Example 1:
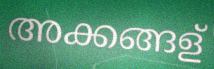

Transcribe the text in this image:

അക്കങ്ങള്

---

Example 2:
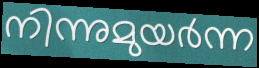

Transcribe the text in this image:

നിന്നുമുയർന്ന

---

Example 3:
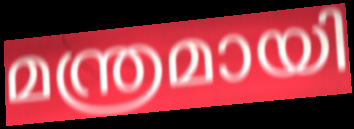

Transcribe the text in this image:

മന്ത്രമായി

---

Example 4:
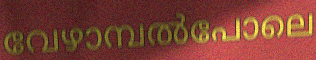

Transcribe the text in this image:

വേഴാമ്പൽപോലെ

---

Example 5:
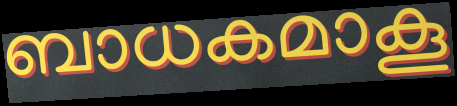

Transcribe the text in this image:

ബാധകമാകൂ